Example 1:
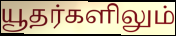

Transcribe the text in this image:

யூதர்களிலும்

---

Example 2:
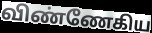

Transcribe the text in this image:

விண்ணேகிய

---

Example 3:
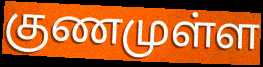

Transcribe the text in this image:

குணமுள்ள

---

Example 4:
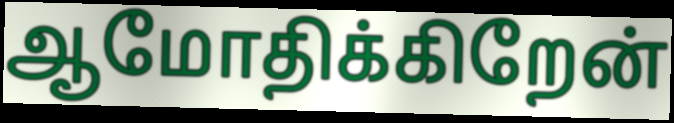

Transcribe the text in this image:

ஆமோதிக்கிறேன்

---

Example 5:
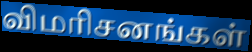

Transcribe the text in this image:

விமரிசனங்கள்